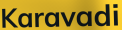
Karavadi